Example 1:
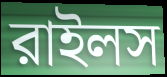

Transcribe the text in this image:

রাইলস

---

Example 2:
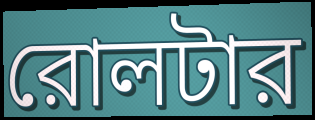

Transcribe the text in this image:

রোলটার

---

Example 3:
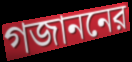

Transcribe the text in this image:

গজাননের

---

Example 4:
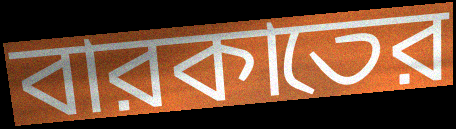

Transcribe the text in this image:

বারকাতের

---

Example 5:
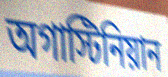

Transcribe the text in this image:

অগাস্টিনিয়ান